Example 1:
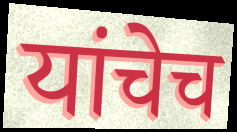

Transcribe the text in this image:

यांचेच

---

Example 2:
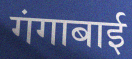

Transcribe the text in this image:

गंगाबाई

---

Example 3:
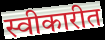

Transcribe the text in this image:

स्वीकारीत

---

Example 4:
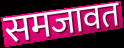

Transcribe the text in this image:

समजावत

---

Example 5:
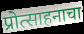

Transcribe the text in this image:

प्रोत्साहनाचा